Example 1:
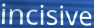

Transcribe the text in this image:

incisive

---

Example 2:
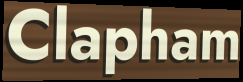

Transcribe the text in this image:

Clapham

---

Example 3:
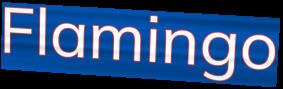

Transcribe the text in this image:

Flamingo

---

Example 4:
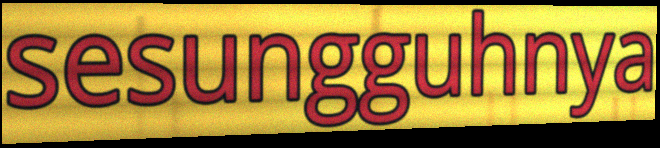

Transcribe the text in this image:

sesungguhnya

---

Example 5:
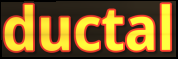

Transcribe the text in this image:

ductal